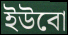
ইউবো